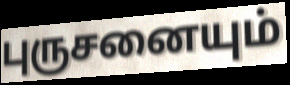
புருசனையும்